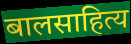
बालसाहित्य